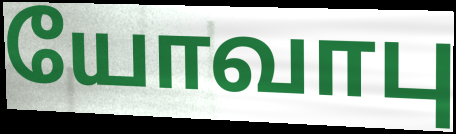
யோவாபு